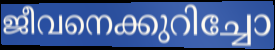
ജീവനെക്കുറിച്ചോ